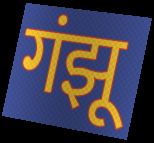
गंझू